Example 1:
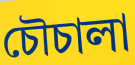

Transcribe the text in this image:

চৌচালা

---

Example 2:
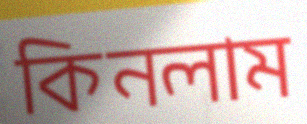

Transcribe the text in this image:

কিনলাম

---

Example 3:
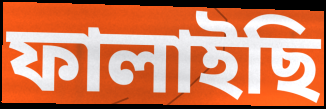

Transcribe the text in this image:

ফালাইছি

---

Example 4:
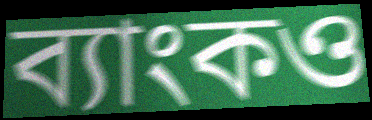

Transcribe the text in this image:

ব্যাংকও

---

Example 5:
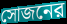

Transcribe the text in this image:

সোজনের